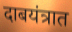
दाबयंत्रात